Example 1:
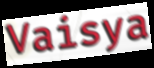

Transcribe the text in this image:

Vaisya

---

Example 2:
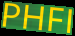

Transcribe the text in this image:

PHFI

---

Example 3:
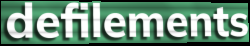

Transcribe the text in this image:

defilements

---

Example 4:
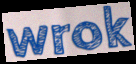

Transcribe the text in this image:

wrok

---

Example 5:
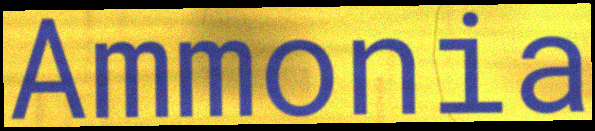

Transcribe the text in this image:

Ammonia